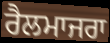
ਰੈਲਮਾਜਰਾ